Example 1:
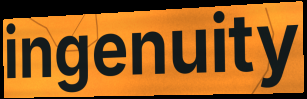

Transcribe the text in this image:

ingenuity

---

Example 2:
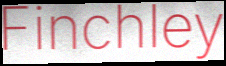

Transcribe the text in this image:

Finchley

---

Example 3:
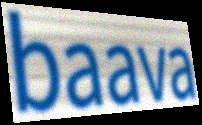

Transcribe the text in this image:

baava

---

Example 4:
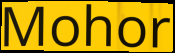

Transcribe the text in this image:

Mohor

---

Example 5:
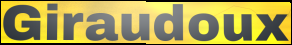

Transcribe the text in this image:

Giraudoux